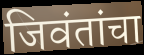
जिवंतांचा